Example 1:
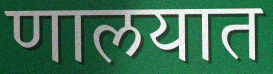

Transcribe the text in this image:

णालयात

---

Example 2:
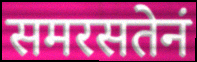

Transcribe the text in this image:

समरसतेनं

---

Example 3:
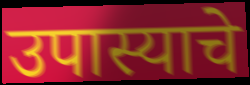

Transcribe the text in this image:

उपास्याचे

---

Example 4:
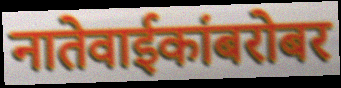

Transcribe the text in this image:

नातेवाईकांबरोबर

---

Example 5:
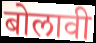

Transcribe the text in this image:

बोलावी